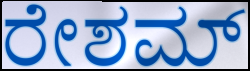
ರೇಶಮ್